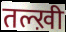
तल्ख़ी